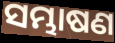
ସମ୍ଭାଷଣ